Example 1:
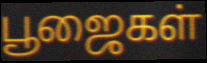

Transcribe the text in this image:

பூஜைகள்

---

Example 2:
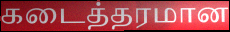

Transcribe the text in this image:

கடைத்தரமான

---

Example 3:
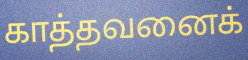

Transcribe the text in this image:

காத்தவனைக்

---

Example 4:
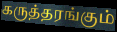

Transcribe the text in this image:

கருத்தரங்கும்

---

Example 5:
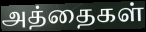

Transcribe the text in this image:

அத்தைகள்